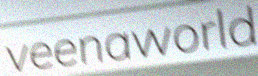
veenaworld